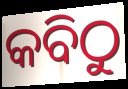
କବିଠୁ